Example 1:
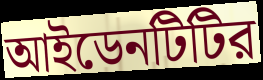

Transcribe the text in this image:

আইডেনটিটির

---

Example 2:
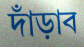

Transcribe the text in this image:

দাঁড়াব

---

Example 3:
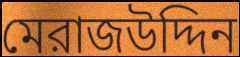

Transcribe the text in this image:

মেরাজউদ্দিন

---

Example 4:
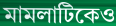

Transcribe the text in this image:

মামলাটিকেও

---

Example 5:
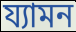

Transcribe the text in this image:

য্যামন